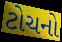
ટોચનો